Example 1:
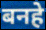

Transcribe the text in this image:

बनहे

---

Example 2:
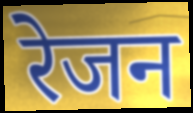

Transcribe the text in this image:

रेजन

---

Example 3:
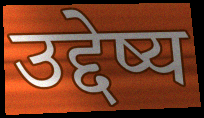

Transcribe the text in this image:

उद्देष्य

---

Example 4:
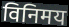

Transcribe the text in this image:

विनिमय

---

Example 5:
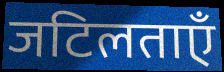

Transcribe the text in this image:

जटिलताएँ